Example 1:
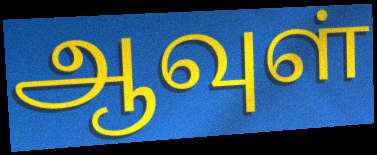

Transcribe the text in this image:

ஆவுள்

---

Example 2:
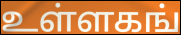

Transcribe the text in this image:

உள்ளகங்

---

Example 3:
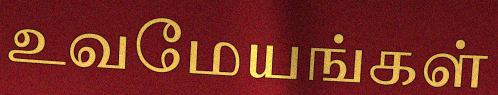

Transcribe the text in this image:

உவமேயங்கள்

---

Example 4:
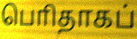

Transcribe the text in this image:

பெரிதாகப்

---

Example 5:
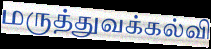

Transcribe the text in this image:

மருத்துவக்கல்வி